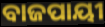
ବାଜପାୟୀ